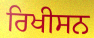
ਰਿਖੀਸਨ